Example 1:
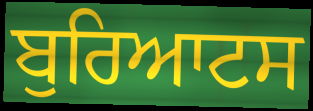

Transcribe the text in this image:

ਬੁਰਿਆਟਸ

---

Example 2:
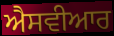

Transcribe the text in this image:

ਐਸਵੀਆਰ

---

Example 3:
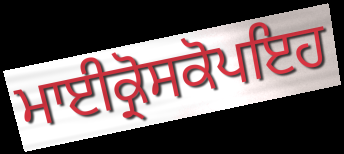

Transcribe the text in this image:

ਮਾਈਕ੍ਰੋਸਕੋਪਇਹ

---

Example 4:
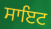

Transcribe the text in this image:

ਸਾਇਟ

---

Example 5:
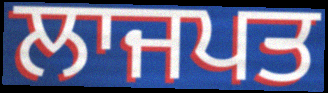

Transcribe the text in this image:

ਲਾਜਪਤ